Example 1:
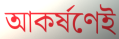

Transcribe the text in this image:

আকর্ষণেই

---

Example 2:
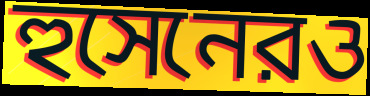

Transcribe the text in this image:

হুসেনেরও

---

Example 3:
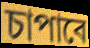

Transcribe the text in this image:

চাপাবে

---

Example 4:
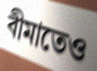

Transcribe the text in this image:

বীমাতেও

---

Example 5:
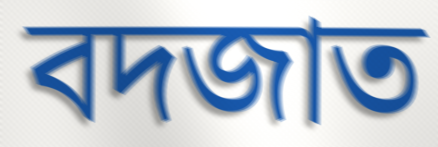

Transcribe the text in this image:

বদজাত